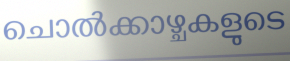
ചൊൽക്കാഴ്ചകളുടെ